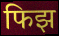
फिझ